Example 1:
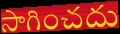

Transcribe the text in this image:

సాగించదు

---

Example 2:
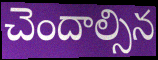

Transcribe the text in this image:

చెందాల్సిన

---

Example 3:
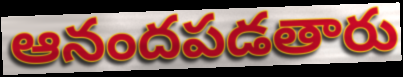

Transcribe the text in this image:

ఆనందపడతారు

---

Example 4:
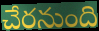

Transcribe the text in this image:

చేరనుంది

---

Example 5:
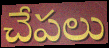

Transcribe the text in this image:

చేపలు